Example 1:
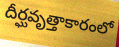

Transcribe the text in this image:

దీర్ఘవృత్తాకారంలో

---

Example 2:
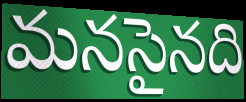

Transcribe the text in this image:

మనసైనది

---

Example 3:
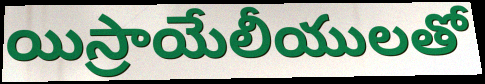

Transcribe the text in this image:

యిస్రాయేలీయులతో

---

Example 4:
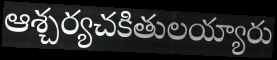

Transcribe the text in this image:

ఆశ్చర్యచకితులయ్యారు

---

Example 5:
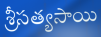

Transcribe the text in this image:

శ్రీసత్యసాయి